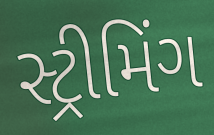
સ્ટ્રીમિંગ